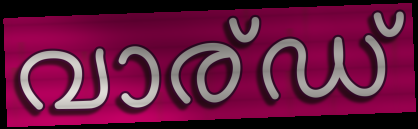
വാര്ഡ്